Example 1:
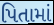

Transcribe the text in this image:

પિતામાં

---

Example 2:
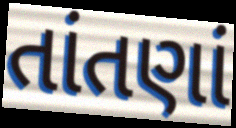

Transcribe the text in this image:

તાંતણાં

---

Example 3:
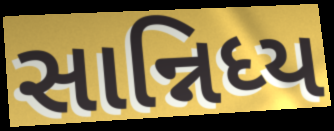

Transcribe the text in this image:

સાન્નિધ્ય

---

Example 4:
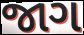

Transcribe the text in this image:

જાગ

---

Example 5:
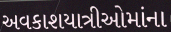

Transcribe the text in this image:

અવકાશયાત્રીઓમાંના